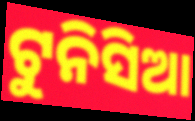
ଟୁନିସିଆ